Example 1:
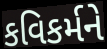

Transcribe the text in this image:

કવિકર્મને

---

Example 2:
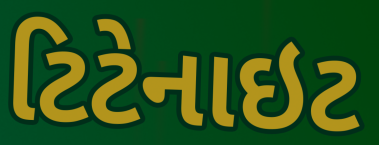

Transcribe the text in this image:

ટિટેનાઇટ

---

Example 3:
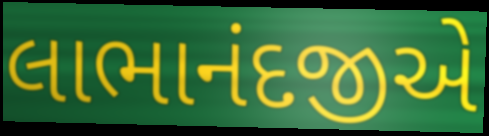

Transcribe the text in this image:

લાભાનંદજીએ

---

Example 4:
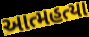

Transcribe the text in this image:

આત્મહત્યા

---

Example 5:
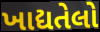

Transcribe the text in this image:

ખાદ્યતેલો